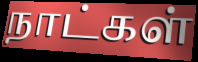
நாட்கள்